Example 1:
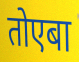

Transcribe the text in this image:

तोएबा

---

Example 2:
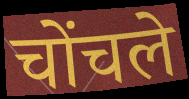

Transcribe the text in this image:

चोंचले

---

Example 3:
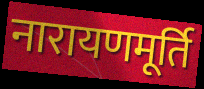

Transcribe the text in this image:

नारायणमूर्ति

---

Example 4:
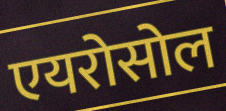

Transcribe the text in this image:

एयरोसोल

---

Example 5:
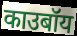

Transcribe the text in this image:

काउबॉय